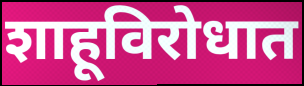
शाहूविरोधात